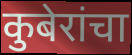
कुबेरांचा